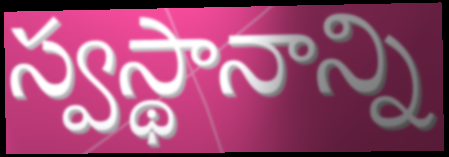
స్వస్థానాన్ని